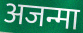
अजन्मा